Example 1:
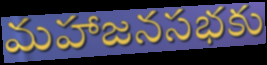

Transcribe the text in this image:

మహాజనసభకు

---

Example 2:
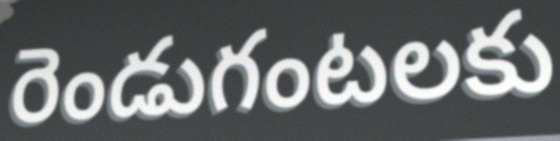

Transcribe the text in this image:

రెండుగంటలకు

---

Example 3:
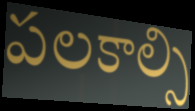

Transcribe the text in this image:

పలకాల్సి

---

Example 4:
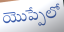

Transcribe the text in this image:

యొప్పేలో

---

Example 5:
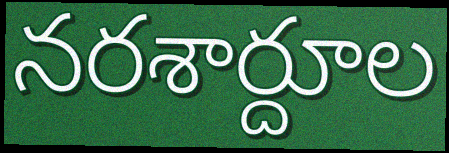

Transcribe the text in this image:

నరశార్దూల